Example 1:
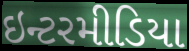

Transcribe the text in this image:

ઇન્ટરમીડિયા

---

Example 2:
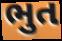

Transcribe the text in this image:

ભુત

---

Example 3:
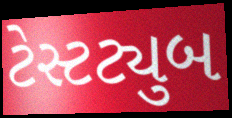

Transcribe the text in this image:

ટેસ્ટટ્યુબ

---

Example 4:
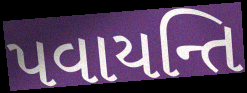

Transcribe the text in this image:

પવાયન્તિ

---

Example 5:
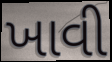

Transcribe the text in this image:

ખાવી